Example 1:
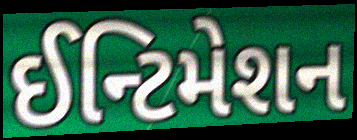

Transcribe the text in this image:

ઈન્ટિમેશન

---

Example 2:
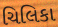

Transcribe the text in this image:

ચિલિકા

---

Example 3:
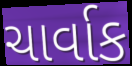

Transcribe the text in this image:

ચાર્વાક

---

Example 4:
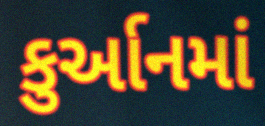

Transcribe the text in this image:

કુર્આનમાં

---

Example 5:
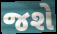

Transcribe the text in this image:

જશે